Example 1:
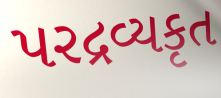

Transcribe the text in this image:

પરદ્રવ્યકૃત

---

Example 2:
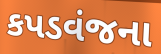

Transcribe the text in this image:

કપડવંજના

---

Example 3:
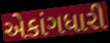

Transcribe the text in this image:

એકાંગધારી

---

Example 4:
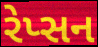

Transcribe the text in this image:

રેપ્સન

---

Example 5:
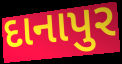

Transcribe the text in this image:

દાનાપુર